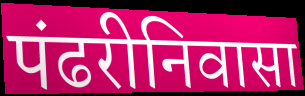
पंढरीनिवासा